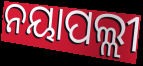
ନୟାପଲ୍ଲୀ